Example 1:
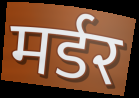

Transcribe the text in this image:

मर्डर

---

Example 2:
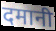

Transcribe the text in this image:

दमानी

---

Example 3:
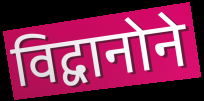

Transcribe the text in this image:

विद्वानोने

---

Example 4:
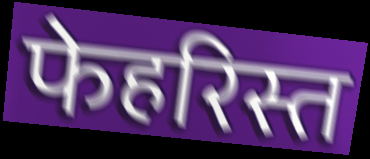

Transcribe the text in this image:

फेहरिस्‍त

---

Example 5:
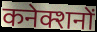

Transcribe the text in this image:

कनेक्शनों